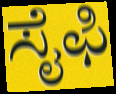
ಸೈಫಿ